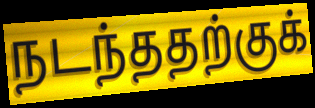
நடந்ததற்குக்